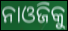
ନାଓଜିକୁ